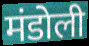
मंडोली